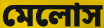
মেলোস